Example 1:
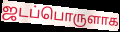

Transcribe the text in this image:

ஜடப்பொருளாக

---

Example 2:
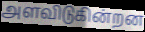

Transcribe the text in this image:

அளவிடுகின்றன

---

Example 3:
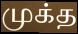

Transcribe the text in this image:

முக்த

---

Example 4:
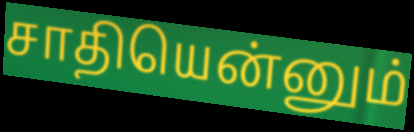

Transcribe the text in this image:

சாதியென்னும்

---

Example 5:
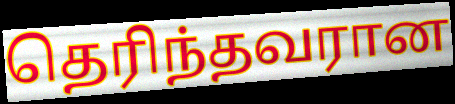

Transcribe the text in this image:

தெரிந்தவரான